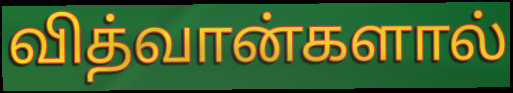
வித்வான்களால்